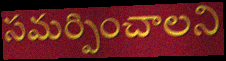
సమర్పించాలని